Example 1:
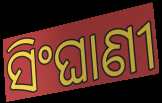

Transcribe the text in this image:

ସିଂଘାଣୀ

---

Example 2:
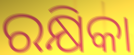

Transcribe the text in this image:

ରକ୍ଷିକା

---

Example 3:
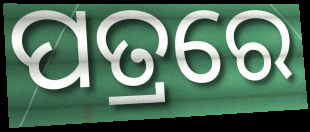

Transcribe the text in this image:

ପତ୍ରରେ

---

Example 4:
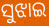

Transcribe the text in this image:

ସୁଝାଇ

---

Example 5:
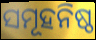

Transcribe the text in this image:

ସମୂହନିଷ୍ଠ